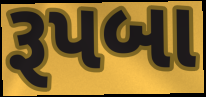
રૂપબા